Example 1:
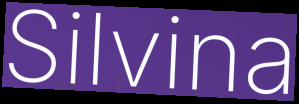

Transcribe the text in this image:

Silvina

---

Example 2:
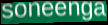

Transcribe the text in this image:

soneenga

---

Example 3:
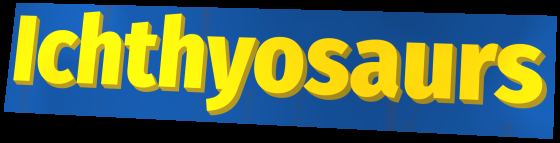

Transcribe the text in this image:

Ichthyosaurs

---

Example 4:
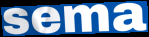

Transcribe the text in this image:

sema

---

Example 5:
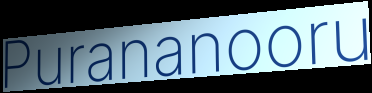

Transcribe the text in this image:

Purananooru